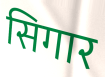
सिगार